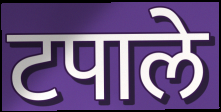
टपाले